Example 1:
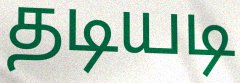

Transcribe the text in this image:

தடியடி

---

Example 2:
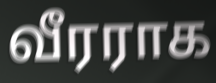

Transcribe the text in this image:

வீரராக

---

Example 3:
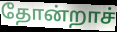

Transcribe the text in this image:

தோன்றாச்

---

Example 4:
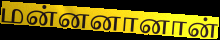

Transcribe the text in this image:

மன்னனானான்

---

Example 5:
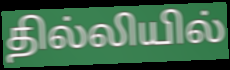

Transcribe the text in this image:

தில்லியில்